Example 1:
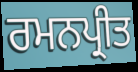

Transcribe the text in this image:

ਰਮਨਪ੍ਰੀਤ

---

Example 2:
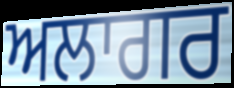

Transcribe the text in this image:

ਅਲਾਗਰ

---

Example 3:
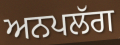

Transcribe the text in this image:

ਅਨਪਲੱਗ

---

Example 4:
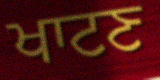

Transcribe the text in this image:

ਖਾਟਣ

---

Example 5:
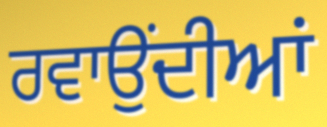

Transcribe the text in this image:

ਰਵਾਉਂਦੀਆਂ